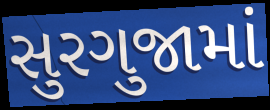
સુરગુજામાં